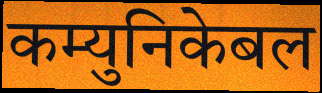
कम्युनिकेबल